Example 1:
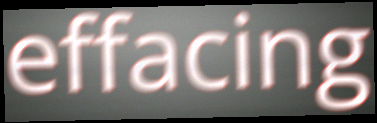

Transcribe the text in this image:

effacing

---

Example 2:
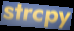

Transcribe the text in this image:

strcpy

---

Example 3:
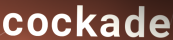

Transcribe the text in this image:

cockade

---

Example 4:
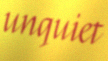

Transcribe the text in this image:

unquiet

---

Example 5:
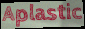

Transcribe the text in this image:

Aplastic